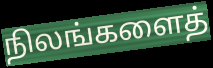
நிலங்களைத்